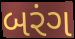
બરંગ